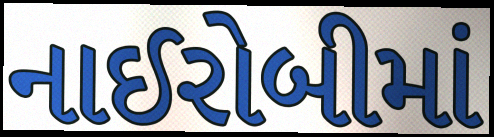
નાઈરોબીમાં